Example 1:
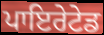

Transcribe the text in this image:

ਪਾਇਰੇਟੇਡ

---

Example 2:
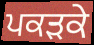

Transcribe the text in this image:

ਪਕੜਕੇ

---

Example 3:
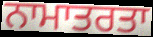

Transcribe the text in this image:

ਨਾਮਾਤਰਤਾ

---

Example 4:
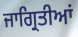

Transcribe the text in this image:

ਜਾਗ੍ਰਿਤੀਆਂ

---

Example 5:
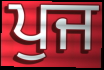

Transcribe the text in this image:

ਪੁਜ